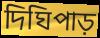
দিঘিপাড়